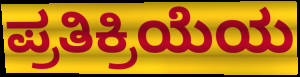
ಪ್ರತಿಕ್ರಿಯೆಯ